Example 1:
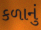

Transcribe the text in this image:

કળાનું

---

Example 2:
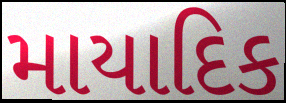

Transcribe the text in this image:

માયાદિક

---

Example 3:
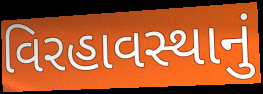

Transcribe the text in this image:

વિરહાવસ્થાનું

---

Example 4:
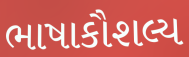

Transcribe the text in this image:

ભાષાકૌશલ્ય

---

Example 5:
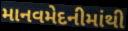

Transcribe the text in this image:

માનવમેદનીમાંથી